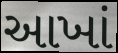
આખાં